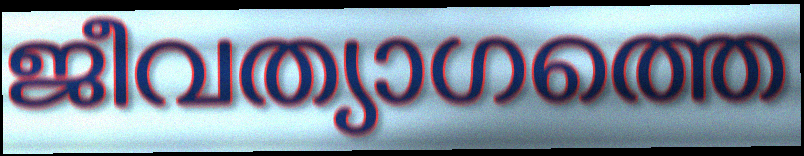
ജീവത്യാഗത്തെ